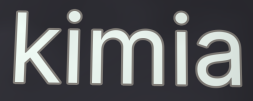
kimia